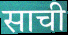
साची